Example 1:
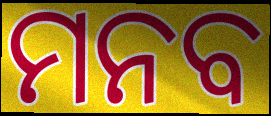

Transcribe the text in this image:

ମନବ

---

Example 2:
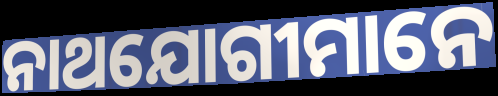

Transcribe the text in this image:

ନାଥଯୋଗୀମାନେ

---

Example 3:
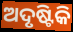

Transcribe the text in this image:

ଅଦୃଷ୍ଟିକି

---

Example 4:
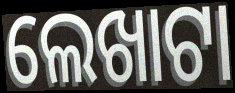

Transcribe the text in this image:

ଲେଖାଟା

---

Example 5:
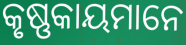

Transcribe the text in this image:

କୃଷ୍ଣକାୟମାନେ